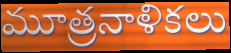
మూత్రనాళికలు